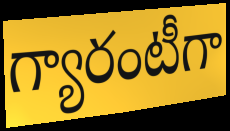
గ్యారంటీగా